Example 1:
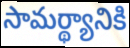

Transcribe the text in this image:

సామర్థ్యానికి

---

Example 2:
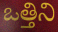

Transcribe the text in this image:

ఒత్తిని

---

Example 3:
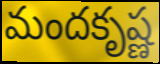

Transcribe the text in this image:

మందకృష్ణ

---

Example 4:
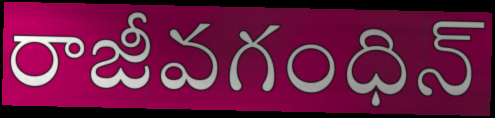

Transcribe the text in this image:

రాజీవగంధిన్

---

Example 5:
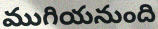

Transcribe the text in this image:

ముగియనుంది